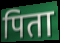
पिता